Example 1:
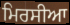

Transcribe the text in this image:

ਮਿਰਸੀਆ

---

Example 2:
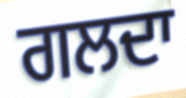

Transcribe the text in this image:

ਗਲਦਾ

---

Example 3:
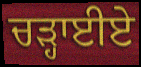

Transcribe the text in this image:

ਚੜ੍ਹਾਈਏ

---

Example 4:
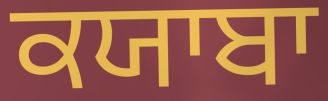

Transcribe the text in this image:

ਕਯਾਬਾ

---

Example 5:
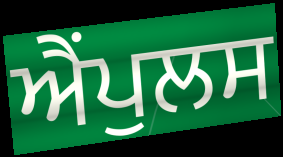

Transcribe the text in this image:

ਐਂਪੁਲਸ